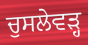
ਚੁਸਲੇਵੜ੍ਹ